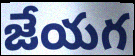
జేయగ